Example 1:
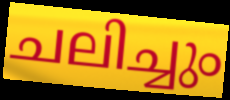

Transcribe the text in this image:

ചലിച്ചും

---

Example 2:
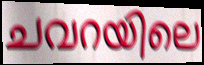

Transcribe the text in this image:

ചവറയിലെ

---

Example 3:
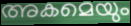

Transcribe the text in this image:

അകമെയും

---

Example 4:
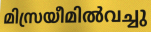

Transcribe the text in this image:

മിസ്രയീമിൽവച്ചു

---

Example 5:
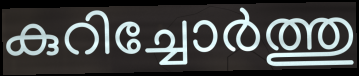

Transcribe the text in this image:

കുറിച്ചോർത്തു